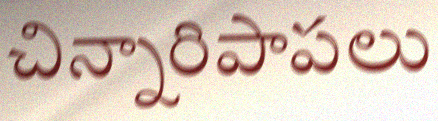
చిన్నారిపాపలు